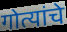
गोत्यांचे